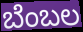
ಬೆಂಬಲ